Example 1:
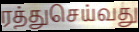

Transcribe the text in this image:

ரத்துசெய்வது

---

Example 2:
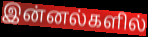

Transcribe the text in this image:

இன்னல்களில்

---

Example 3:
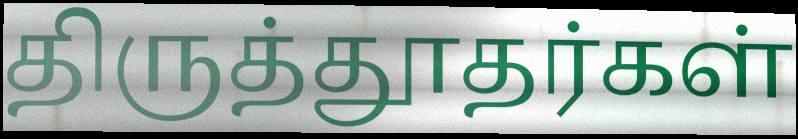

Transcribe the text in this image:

திருத்தூதர்கள்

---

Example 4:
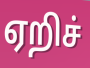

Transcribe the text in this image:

ஏறிச்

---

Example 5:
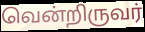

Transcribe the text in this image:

வென்றிருவர்